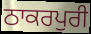
ਠਾਕਰਪੁਰੀ